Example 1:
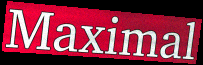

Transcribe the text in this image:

Maximal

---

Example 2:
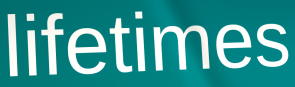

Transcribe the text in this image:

lifetimes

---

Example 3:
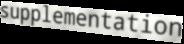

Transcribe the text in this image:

supplementation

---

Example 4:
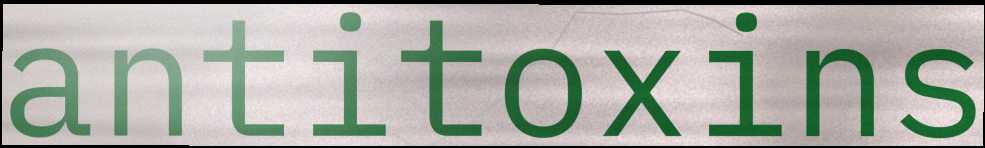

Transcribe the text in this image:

antitoxins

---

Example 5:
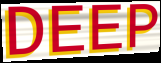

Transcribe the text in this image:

DEEP